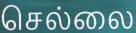
செல்லை